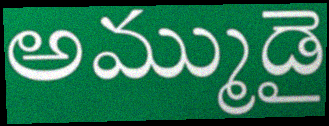
అమ్ముడై